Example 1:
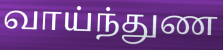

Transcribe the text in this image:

வாய்ந்துண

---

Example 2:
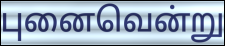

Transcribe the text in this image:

புனைவென்று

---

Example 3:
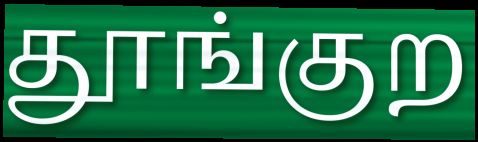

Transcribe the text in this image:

தூங்குற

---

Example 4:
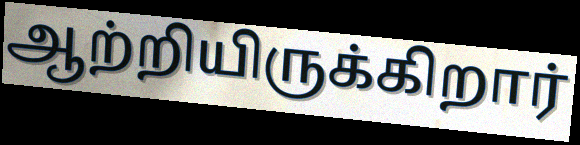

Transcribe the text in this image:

ஆற்றியிருக்கிறார்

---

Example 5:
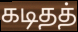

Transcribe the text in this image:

கடிதத்